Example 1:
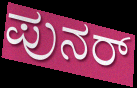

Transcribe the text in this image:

ಪುನರ್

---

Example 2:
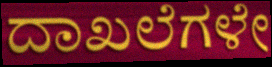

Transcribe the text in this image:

ದಾಖಲೆಗಳೇ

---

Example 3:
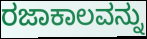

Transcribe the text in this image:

ರಜಾಕಾಲವನ್ನು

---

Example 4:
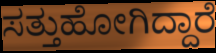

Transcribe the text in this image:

ಸತ್ತುಹೋಗಿದ್ದಾರೆ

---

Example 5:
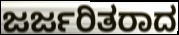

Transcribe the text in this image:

ಜರ್ಜರಿತರಾದ